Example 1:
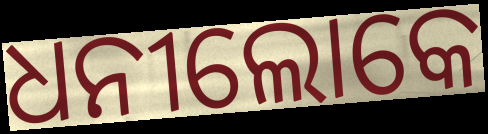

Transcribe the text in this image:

ଧନୀଲୋକେ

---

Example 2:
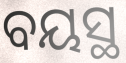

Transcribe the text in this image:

ବୟସ୍ଥ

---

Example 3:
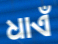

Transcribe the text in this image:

ଧାଏଁ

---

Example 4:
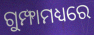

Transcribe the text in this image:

ଗୁମ୍ଫାମଧ୍ୟରେ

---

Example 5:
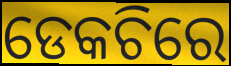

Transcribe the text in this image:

ଡେକଚିରେ